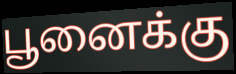
பூனைக்கு